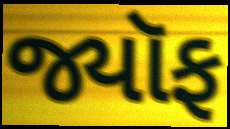
જ્યૉફ